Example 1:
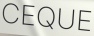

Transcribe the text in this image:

CEQUE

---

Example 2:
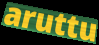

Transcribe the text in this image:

aruttu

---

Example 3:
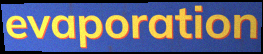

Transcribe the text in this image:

evaporation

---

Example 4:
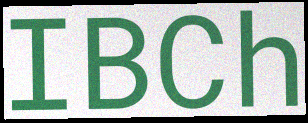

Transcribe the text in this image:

IBCh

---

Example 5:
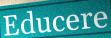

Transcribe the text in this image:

Educere